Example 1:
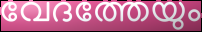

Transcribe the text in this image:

വേദത്തേയും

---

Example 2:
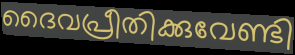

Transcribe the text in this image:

ദൈവപ്രീതിക്കുവേണ്ടി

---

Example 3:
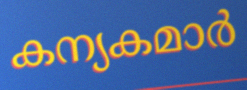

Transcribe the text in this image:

കന്യകമാർ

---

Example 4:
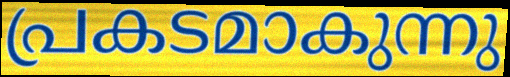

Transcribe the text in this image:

പ്രകടമാകുന്നു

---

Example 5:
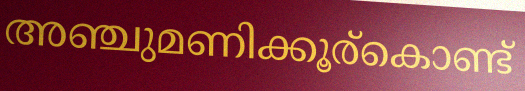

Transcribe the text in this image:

അഞ്ചുമണിക്കൂര്കൊണ്ട്